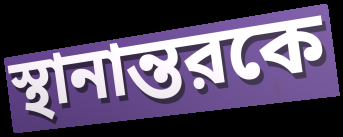
স্থানান্তরকে